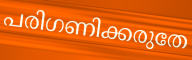
പരിഗണിക്കരുതേ